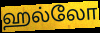
ஹல்லோ